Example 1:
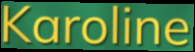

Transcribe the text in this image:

Karoline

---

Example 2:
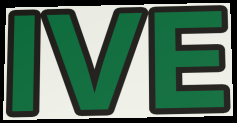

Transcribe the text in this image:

IVE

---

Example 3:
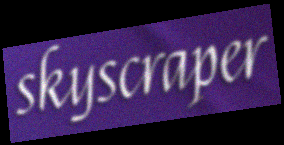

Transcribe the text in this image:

skyscraper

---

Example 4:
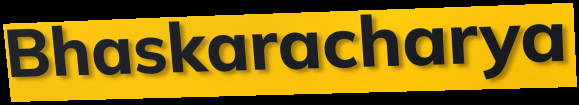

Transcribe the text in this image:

Bhaskaracharya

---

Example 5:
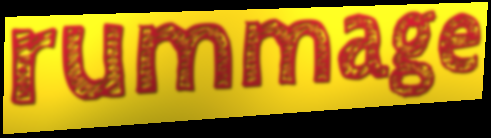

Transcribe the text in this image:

rummage